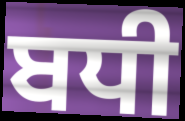
ਬਧੀ